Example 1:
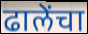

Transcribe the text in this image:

ढालेंचा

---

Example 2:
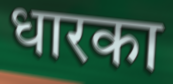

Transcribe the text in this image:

धारका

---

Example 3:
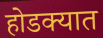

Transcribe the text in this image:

होडक्यात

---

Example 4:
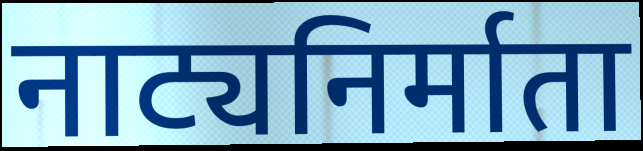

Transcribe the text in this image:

नाट्यनिर्माता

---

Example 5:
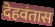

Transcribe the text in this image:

देहवंतास